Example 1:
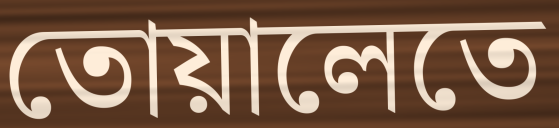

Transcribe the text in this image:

তোয়ালেতে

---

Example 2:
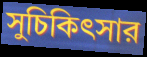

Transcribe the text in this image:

সুচিকিৎসার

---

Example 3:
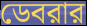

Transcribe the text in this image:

ডেবরার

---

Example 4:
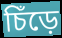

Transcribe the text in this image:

চিঁড়ে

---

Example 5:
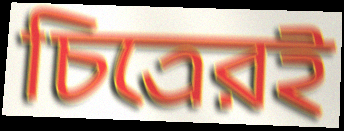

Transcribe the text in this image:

চিত্রেরই